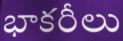
భాకరీలు